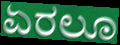
ಏರಲೂ